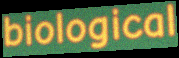
biological